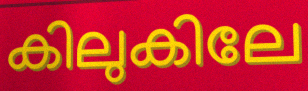
കിലുകിലേ